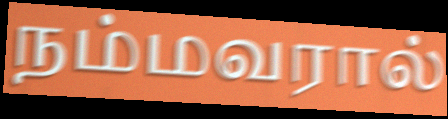
நம்மவரால்